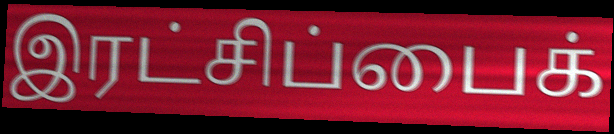
இரட்சிப்பைக்